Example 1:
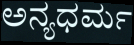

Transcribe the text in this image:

ಅನ್ಯಧರ್ಮ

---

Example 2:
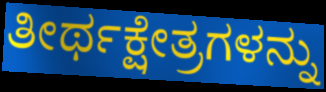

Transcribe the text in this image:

ತೀರ್ಥಕ್ಷೇತ್ರಗಳನ್ನು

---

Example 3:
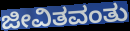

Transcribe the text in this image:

ಜೀವಿತವಂತು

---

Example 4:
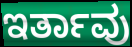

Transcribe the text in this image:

ಇರ್ತಾವು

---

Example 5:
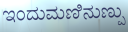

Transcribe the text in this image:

ಇಂದುಮಣಿನುಣ್ಪು